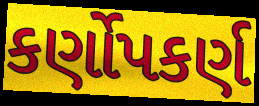
કર્ણોપકર્ણ